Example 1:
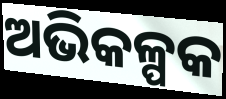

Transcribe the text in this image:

ଅଭିକଳ୍ପକ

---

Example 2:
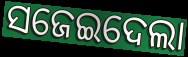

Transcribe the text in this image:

ସଜେଇଦେଲା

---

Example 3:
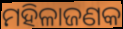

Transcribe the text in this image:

ମହିଳାଜଣକ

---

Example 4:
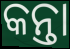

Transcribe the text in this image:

କନ୍ତା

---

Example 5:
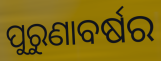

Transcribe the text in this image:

ପୁରୁଣାବର୍ଷର